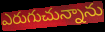
ఎరుగుచున్నాను